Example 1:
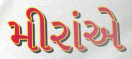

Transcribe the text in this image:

મીરાંએ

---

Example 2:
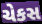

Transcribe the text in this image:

ચેકસ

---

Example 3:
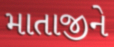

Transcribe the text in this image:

માતાજીને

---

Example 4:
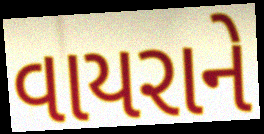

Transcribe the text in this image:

વાયરાને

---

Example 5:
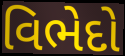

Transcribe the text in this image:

વિભેદો